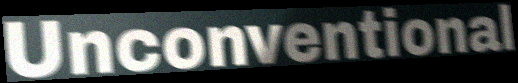
Unconventional